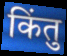
किंतु